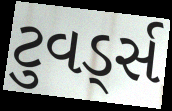
ટુવર્ડ્સ